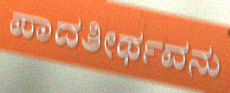
ಪಾದತೀರ್ಥವನು